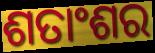
ଶତାଂଶର